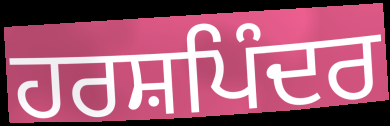
ਹਰਸ਼ਪਿੰਦਰ